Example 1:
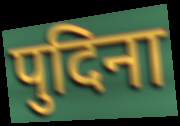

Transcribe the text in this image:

पुदिना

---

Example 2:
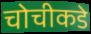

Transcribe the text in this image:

चोचीकडे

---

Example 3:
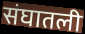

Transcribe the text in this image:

संघातली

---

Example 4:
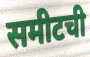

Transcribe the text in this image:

समीटची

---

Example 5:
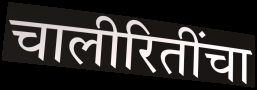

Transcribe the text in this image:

चालीरितींचा